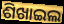
ଶିଖାଇଲ